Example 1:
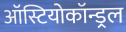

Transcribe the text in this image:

ऑस्टियोकॉन्ड्रल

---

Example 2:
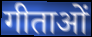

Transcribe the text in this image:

गीताओं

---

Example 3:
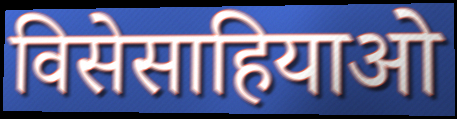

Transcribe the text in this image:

विसेसाहियाओ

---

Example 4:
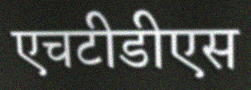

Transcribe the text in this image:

एचटीडीएस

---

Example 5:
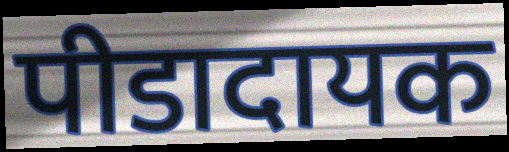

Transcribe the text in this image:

पीडादायक